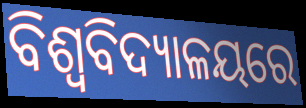
ବିଶ୍ୱବିଦ୍ୟାଳୟରେ